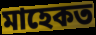
মাহেকত